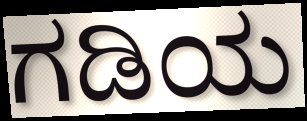
ಗಡಿಯ